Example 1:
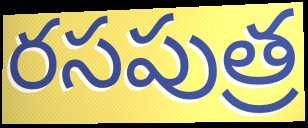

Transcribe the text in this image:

రసపుత్ర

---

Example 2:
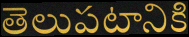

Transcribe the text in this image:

తెలుపటానికి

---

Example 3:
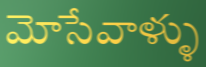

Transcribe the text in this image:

మోసేవాళ్ళు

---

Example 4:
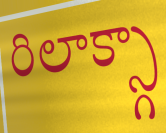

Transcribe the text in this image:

రిలాక్స్గా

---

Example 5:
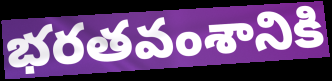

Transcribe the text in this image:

భరతవంశానికి